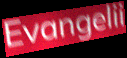
Evangelii